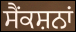
ਸੈਂਕਸ਼ਨਾਂ